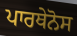
ਪਾਰਥੇਨੋਸ